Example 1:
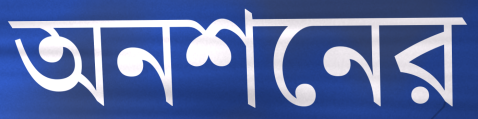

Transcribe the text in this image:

অনশনের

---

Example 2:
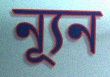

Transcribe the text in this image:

ন্যূন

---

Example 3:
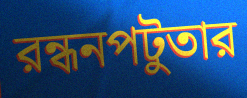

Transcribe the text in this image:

রন্ধনপটুতার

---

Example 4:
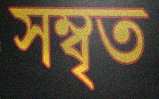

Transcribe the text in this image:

সম্বৃত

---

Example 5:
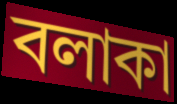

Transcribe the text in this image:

বলাকা